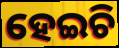
ହେଇଚି